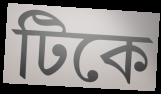
টিকে